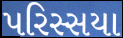
પરિસ્સયા